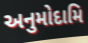
અનુમોદામિ